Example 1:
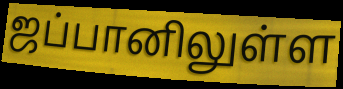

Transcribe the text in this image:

ஜப்பானிலுள்ள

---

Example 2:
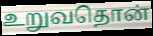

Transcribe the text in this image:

உறுவதொன்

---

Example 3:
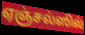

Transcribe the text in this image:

ஏஞ்சல்ஸில்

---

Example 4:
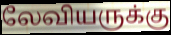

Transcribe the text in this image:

லேவியருக்கு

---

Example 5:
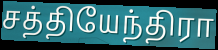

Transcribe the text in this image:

சத்தியேந்திரா